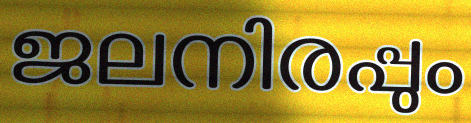
ജലനിരപ്പും